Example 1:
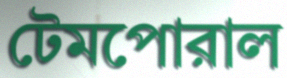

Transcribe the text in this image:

টেমপোরাল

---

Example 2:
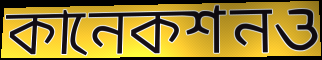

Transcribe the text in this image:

কানেকশনও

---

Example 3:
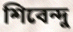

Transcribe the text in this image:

শিবেন্দু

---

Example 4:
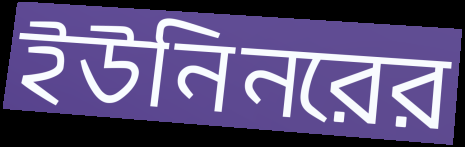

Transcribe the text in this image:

ইউনিনরের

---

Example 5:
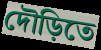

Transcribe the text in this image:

দৌড়িতে